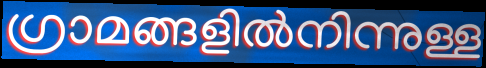
ഗ്രാമങ്ങളിൽനിന്നുള്ള